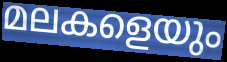
മലകളെയും